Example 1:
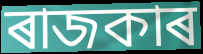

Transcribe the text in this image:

ৰাজকাৰ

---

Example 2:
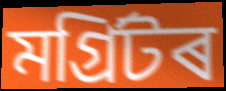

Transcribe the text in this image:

মৰ্গ্ৰিটৰ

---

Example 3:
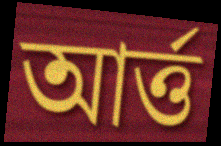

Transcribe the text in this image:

আৰ্ত্ত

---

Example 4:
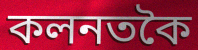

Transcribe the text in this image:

কলনতকৈ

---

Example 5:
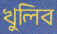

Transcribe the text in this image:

খুলিব